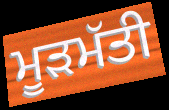
ਮੂੜਮੱਤੀ